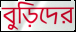
বুড়িদের